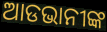
ଆଡଭାନୀଙ୍କ